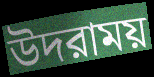
উদরাময়